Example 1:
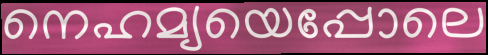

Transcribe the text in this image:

നെഹമ്യയെപ്പോലെ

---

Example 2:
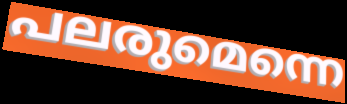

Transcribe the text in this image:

പലരുമെന്നെ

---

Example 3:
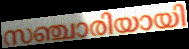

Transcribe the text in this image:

സഞ്ചാരിയായി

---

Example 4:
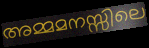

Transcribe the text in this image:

അമ്മമനസ്സിലെ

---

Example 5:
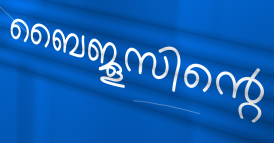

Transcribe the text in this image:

ബൈജൂസിന്റെ